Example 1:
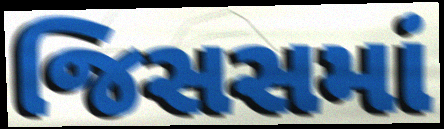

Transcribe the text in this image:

જિસસમાં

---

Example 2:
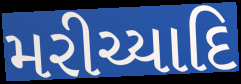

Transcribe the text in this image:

મરીચ્યાદિ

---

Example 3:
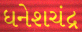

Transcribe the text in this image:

ધનેશચંદ્ર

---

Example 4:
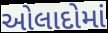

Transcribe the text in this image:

ઓલાદોમાં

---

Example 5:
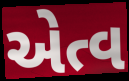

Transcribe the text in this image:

એત્વ